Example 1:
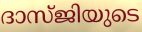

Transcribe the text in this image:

ദാസ്ജിയുടെ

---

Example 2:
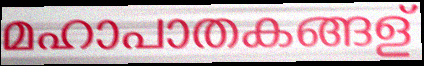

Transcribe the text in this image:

മഹാപാതകങ്ങള്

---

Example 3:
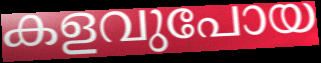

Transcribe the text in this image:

കളവുപോയ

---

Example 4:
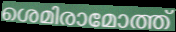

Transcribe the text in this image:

ശെമിരാമോത്ത്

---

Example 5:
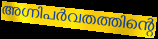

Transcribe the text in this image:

അഗ്നിപർവതത്തിന്റെ